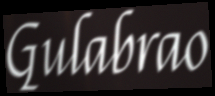
Gulabrao